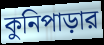
কুনিপাড়ার